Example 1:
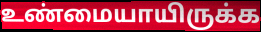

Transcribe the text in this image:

உண்மையாயிருக்க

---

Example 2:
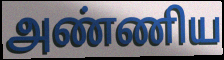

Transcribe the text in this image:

அண்ணிய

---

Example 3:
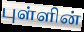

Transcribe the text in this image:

புள்ளின்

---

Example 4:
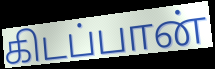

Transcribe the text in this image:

கிடப்பான்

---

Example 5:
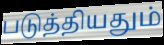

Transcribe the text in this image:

படுத்தியதும்